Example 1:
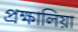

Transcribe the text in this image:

প্রক্ষালিয়া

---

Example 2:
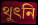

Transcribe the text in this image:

থুৎনি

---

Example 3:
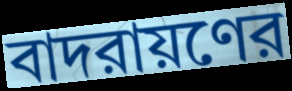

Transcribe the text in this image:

বাদরায়ণের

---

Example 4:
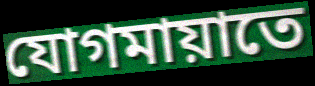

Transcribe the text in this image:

যোগমায়াতে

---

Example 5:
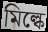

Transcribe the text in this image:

মিল্কে